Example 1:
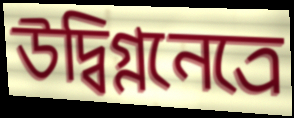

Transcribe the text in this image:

উদ্বিগ্ননেত্রে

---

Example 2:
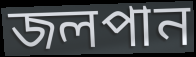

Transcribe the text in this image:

জলপান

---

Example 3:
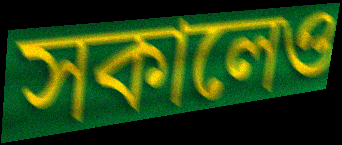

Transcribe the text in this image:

সকালেও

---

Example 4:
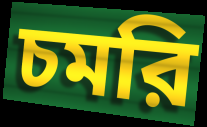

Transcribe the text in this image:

চমরি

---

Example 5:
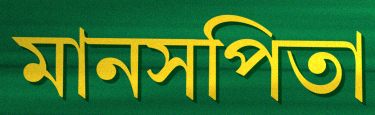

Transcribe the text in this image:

মানসপিতা